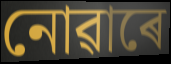
নোৱাৰে